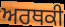
ਅਰਥਕੀ